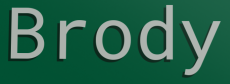
Brody